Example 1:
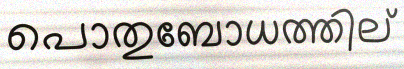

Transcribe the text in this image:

പൊതുബോധത്തില്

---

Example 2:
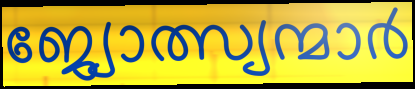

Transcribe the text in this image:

ജ്യോത്സ്യന്മാർ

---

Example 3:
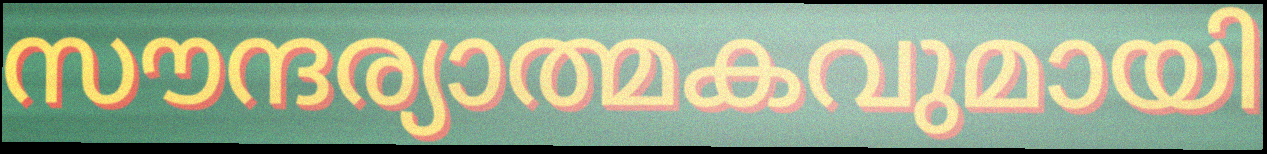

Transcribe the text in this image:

സൗന്ദര്യാത്മകവുമായി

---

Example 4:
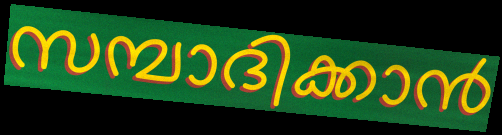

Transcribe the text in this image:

സമ്പാദിക്കാൻ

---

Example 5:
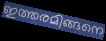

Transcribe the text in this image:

ഇത്തരമിങ്ങനെ